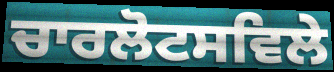
ਚਾਰਲੋਟਸਵਿਲੇ